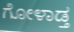
ಗೋಳಾಡ್ತ